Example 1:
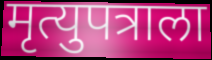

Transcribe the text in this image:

मृत्युपत्राला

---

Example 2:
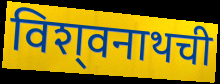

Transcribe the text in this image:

विश्वनाथची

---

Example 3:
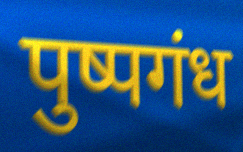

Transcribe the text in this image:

पुष्पगंध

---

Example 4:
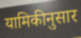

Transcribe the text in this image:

यामिकीनुसार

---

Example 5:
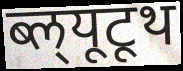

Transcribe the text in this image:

ब्ल्यूटूथ